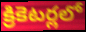
క్రికెటర్లలో